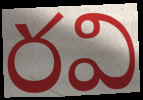
రవి